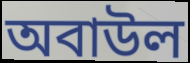
অবাউল